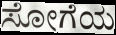
ಸೋಗೆಯ